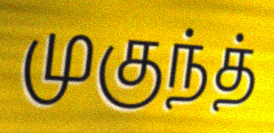
முகுந்த்